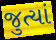
જુત્યાં